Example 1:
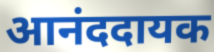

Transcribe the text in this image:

आनंददायक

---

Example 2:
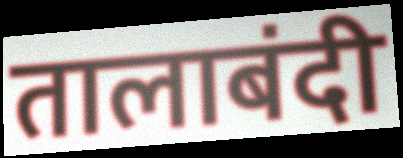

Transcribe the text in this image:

तालाबंदी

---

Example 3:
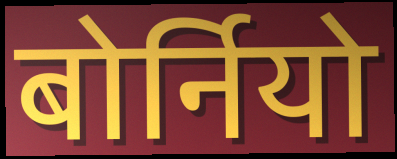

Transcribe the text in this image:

बोर्नियो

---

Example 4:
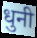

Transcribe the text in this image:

धुनी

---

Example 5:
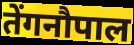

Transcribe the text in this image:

तेंगनौपाल